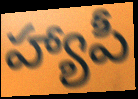
హ్యాపీ